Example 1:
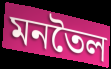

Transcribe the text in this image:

মনতৈল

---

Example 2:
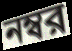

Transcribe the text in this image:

নম্বর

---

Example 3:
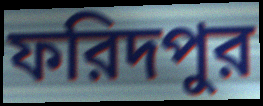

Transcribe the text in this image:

ফরিদপুর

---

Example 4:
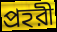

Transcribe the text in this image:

প্রহরী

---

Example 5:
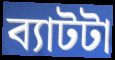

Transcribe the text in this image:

ব্যাটটা